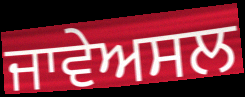
ਜਾਵੇਅਸਲ